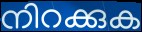
നിറക്കുക